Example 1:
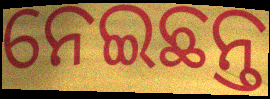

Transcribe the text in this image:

ନେଇଛନ୍ତ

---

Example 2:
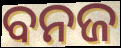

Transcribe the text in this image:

ବନଜ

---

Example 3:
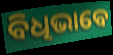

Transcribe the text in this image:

ବିଧିଭାବେ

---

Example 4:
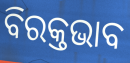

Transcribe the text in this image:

ବିରକ୍ତଭାବ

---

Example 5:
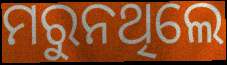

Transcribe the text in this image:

ମରୁନଥିଲେ